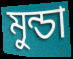
মুন্ডা